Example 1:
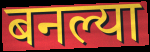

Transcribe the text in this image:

बनल्या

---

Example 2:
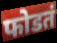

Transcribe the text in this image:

फोडतं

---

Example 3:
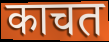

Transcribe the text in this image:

काचत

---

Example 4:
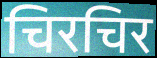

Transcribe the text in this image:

चिरचिर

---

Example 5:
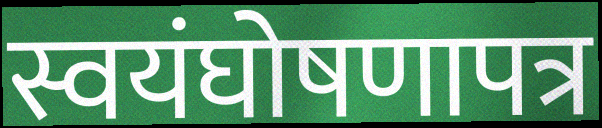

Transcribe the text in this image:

स्वयंघोषणापत्र